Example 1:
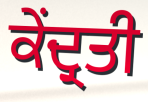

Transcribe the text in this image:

ਕੇਂਦ੍ਰਤੀ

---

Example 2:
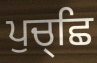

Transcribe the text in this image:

ਪੁਚ੍ਛਿ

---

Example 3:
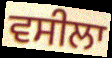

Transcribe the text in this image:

ਵਸੀਲਾ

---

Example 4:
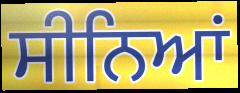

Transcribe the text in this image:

ਸੀਨਿਆਂ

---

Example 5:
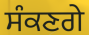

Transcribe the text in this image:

ਸੰਕਣਗੇ